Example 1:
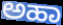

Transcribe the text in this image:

ಅಹಾ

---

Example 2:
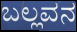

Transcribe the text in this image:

ಬಲ್ಲವನ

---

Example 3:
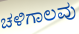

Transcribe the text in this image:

ಚಳಿಗಾಲವು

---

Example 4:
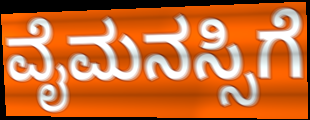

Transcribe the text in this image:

ವೈಮನಸ್ಸಿಗೆ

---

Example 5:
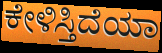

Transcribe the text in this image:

ಕೇಳಿಸ್ತಿದೆಯಾ